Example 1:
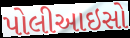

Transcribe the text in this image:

પોલીઆઇસો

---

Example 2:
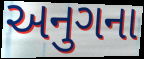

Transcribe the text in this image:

અનુગના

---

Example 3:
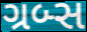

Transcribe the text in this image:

ગ્રબ્સ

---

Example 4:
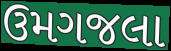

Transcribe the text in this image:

ઉમગજલા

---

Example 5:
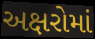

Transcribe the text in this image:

અક્ષરોમાં